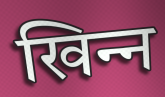
खिन्‍न